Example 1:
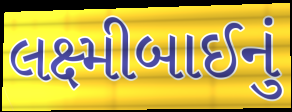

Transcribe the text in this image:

લક્ષ્મીબાઈનું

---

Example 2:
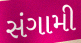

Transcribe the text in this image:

સંગામી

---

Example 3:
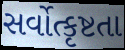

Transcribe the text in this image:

સર્વોત્કૃષ્ટતા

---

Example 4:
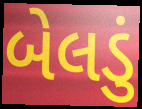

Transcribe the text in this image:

બેલડું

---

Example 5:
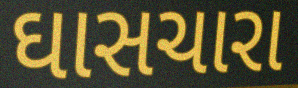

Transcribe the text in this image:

ઘાસચારા